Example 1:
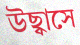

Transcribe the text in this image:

উছ্বাসে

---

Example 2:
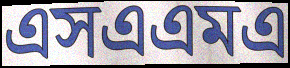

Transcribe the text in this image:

এসএএমএ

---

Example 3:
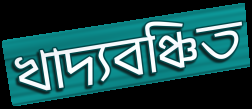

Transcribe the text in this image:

খাদ্যবঞ্চিত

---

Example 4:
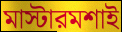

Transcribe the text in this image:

মাস্টারমশাই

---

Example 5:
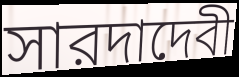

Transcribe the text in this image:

সারদাদেবী